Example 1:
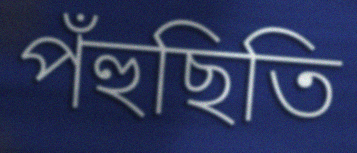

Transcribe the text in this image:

পঁহুছিতি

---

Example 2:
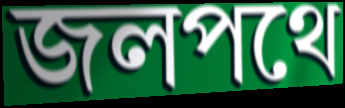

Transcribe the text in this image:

জলপথে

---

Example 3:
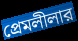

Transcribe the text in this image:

প্রেমলীলার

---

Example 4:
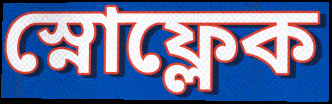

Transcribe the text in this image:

স্নোফ্লেক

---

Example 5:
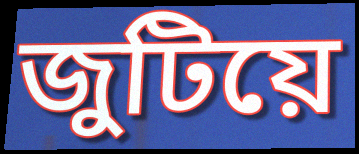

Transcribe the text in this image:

জুটিয়ে